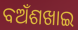
ବଅଁଶଖାଇ